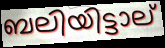
ബലിയിട്ടാല്